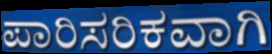
ಪಾರಿಸರಿಕವಾಗಿ